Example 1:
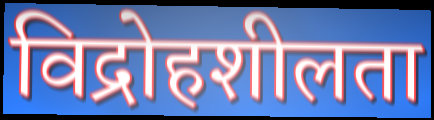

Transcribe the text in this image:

विद्रोहशीलता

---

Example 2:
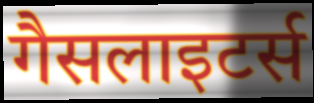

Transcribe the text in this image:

गैसलाइटर्स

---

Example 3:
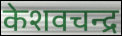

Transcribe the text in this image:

केशवचन्द्र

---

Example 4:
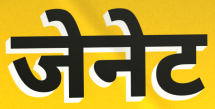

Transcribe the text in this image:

जेनेट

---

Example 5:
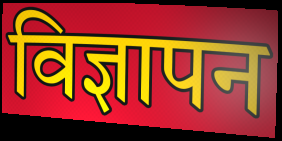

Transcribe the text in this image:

विज्ञापन